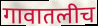
गावातलीच